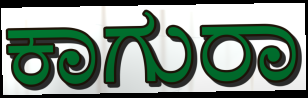
ಕಾಗುರಾ